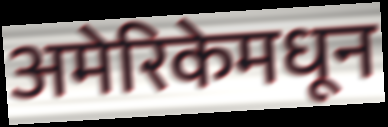
अमेरिकेमधून